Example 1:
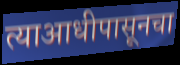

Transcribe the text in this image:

त्याआधीपासूनचा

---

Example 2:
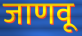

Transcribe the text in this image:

जाणवू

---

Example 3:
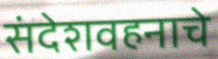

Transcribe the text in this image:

संदेशवहनाचे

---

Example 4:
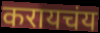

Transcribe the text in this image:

करायचंय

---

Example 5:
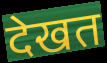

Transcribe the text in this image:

देखत